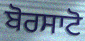
ਬੋਰਸਾਟੋ